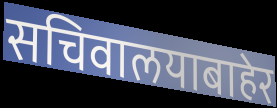
सचिवालयाबाहेर